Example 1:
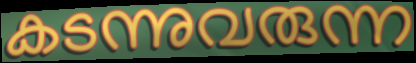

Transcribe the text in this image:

കടന്നുവരുന്ന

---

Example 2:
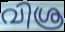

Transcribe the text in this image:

വിശ്ര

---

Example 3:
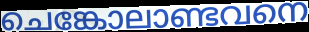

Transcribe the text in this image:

ചെങ്കോലാണ്ടവനെ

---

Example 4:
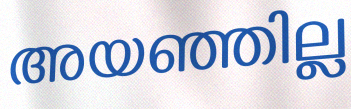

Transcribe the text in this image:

അയഞ്ഞില്ല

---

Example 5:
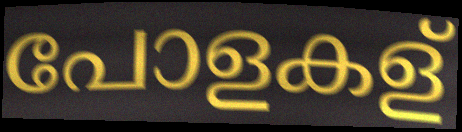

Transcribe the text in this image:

പോളകള്